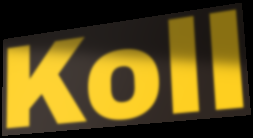
Koll